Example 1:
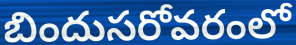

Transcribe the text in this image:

బిందుసరోవరంలో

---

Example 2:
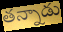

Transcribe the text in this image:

తన్నాడు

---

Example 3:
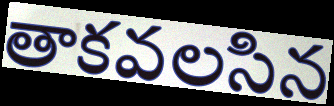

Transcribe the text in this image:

తాకవలసిన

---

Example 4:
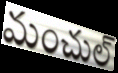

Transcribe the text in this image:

మంచుల్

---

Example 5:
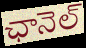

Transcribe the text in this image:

ఛానెల్